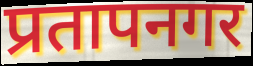
प्रतापनगर